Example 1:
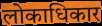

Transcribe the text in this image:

लोकाधिकार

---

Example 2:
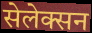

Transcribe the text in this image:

सेलेक्सन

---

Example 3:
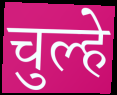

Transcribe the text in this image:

चुल्हे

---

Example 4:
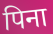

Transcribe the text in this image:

पिना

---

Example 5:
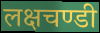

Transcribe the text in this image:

लक्षचण्डी